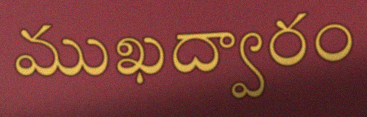
ముఖద్వారం